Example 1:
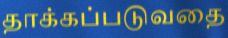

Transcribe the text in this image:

தாக்கப்படுவதை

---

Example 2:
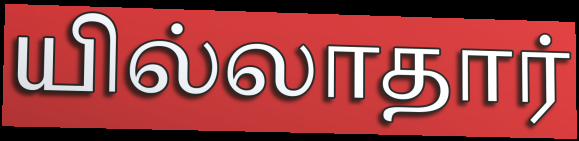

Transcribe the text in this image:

யில்லாதார்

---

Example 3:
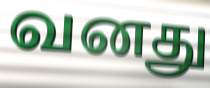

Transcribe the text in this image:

வனது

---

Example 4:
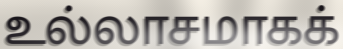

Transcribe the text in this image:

உல்லாசமாகக்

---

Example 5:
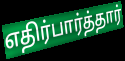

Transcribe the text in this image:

எதிர்பார்த்தார்